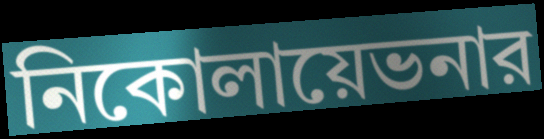
নিকোলায়েভনার